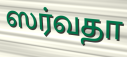
ஸர்வதா